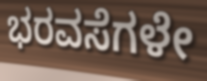
ಭರವಸೆಗಳೇ